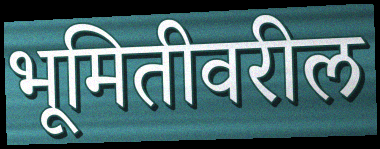
भूमितीवरील